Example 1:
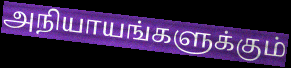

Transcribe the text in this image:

அநியாயங்களுக்கும்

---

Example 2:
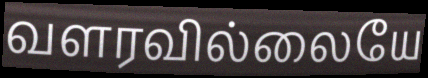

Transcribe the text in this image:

வளரவில்லையே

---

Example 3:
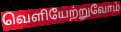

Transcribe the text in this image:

வெளியேற்றுவோம்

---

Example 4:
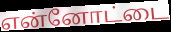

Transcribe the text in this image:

என்னோட்டை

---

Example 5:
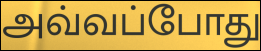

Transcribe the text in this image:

அவ்வப்போது